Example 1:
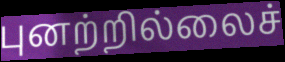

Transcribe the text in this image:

புனற்றில்லைச்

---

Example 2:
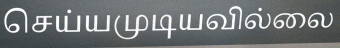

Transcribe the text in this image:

செய்யமுடியவில்லை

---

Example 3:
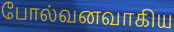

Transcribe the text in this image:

போல்வனவாகிய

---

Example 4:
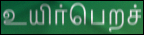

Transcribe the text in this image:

உயிர்பெறச்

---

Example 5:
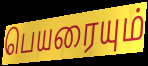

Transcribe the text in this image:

பெயரையும்